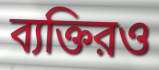
ব্যক্তিরও